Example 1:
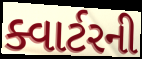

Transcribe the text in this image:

ક્વાર્ટરની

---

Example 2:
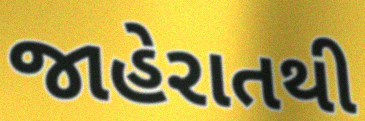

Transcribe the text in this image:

જાહેરાતથી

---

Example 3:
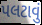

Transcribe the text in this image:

પલટાવું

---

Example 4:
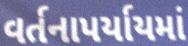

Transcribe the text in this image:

વર્તનાપર્યાયમાં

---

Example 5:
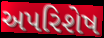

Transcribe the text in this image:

અપરિશેષ